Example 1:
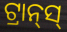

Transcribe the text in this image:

ଟ୍ରାନ୍‍ସ୍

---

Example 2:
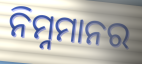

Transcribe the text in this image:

ନିମ୍ନମାନର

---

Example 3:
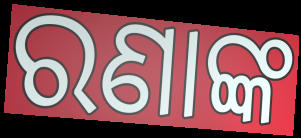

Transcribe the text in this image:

ରଣାଙ୍କ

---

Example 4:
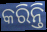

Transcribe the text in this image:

କରିନ୍ତି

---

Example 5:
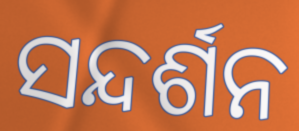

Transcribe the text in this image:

ସନ୍ଦର୍ଶନ